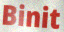
Binit